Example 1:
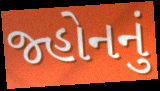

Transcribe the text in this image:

જ્હોનનું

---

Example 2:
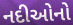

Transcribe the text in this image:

નદીઓનો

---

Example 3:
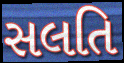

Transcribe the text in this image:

સલતિ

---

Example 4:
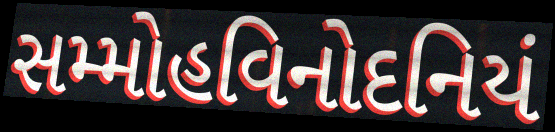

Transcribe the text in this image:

સમ્મોહવિનોદનિયં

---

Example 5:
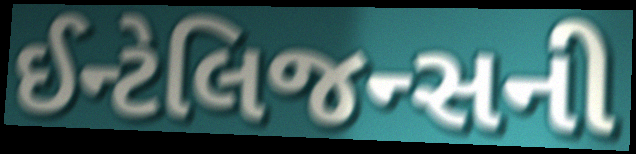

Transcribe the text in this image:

ઈન્ટેલિજન્સની